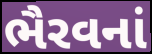
ભૈરવનાં